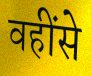
वहींसे